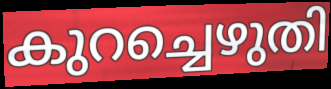
കുറച്ചെഴുതി